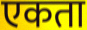
एकता